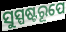
ସୁସ୍ପଷ୍ଟରୂପେ